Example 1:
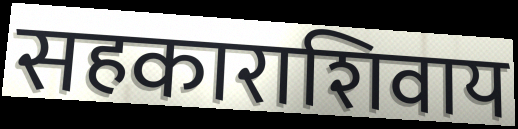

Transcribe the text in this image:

सहकाराशिवाय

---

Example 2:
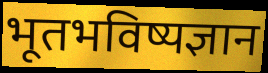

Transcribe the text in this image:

भूतभविष्यज्ञान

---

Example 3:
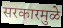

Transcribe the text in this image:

सरकारमुळे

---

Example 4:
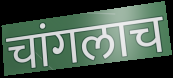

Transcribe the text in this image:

चांगलाच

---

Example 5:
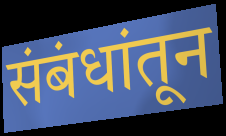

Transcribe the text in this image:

संबंधांतून